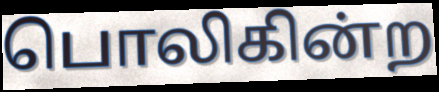
பொலிகின்ற